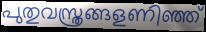
പുതുവസ്ത്രങ്ങളണിഞ്ഞ്